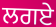
ਲਗਏ